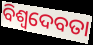
ବିଶ୍ୱଦେବତା